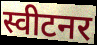
स्वीटनर